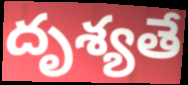
దృశ్యతే